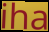
iha